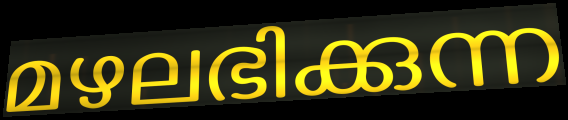
മഴലഭിക്കുന്ന